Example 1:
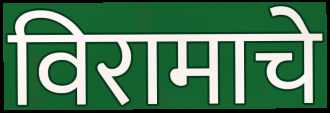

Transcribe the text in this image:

विरामाचे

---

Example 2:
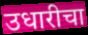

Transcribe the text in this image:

उधारीचा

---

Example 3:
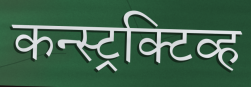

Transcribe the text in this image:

कन्स्ट्रक्टिव्ह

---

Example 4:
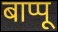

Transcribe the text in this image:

बाप्पू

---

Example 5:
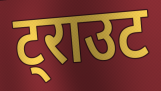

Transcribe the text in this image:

ट्राउट